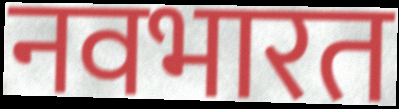
नवभारत